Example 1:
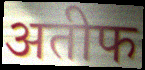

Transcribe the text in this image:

अतीफ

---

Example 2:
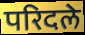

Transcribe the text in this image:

परिदले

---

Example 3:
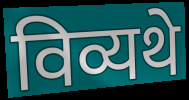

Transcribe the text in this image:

विव्यथे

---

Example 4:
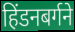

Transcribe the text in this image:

हिंडनबर्गने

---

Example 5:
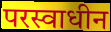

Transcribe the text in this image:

परस्वाधीन